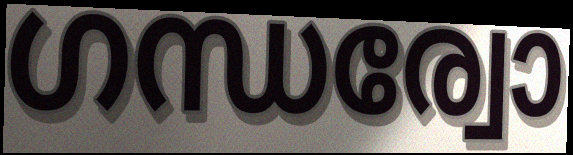
ഗന്ധര്വോ